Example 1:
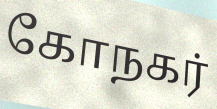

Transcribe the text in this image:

கோநகர்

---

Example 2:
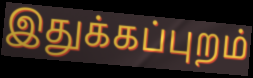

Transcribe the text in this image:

இதுக்கப்புறம்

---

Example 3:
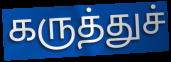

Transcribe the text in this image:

கருத்துச்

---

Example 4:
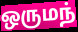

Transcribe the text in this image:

ஒருமந்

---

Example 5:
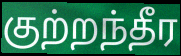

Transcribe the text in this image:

குற்றந்தீர